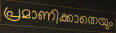
പ്രമാണിക്കാതെയും